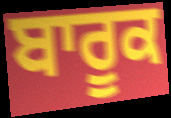
ਬਾਰੂਕ